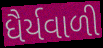
ધૈર્યવાળી